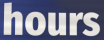
hours